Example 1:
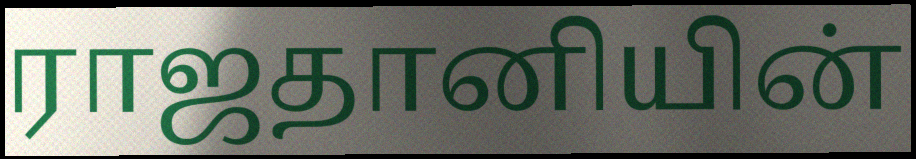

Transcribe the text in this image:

ராஜதானியின்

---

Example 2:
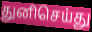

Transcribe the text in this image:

துனிசெய்து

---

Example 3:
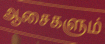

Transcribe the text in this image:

ஆசைகளும்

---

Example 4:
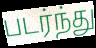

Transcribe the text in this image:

படர்ந்து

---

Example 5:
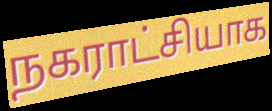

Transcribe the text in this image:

நகராட்சியாக